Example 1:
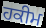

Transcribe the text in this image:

ਹਕੀਮ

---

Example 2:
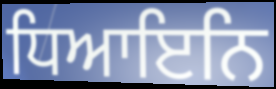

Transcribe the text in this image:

ਧਿਆਇਨਿ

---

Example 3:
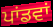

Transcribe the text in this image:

ਪਾਂਡਵਾਂ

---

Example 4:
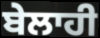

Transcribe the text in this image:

ਬੇਲਾਹੀ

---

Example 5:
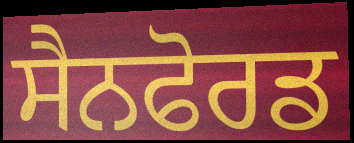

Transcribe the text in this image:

ਸੈਨਫੋਰਡ